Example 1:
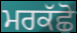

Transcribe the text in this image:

ਮਰਕੱਛੋ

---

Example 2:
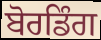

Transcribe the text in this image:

ਬੋਰਡਿੰਗ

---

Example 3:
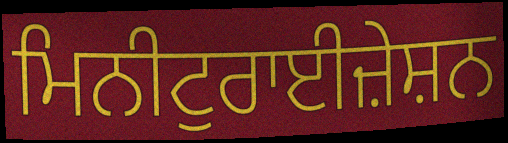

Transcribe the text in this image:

ਮਿਨੀਟੁਰਾਈਜ਼ੇਸ਼ਨ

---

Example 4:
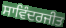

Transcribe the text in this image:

ਸਾਵਿੰਦਰਜੀਤ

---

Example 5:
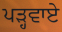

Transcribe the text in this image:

ਪੜ੍ਹਵਾਏ